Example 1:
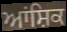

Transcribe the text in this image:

ਆਂਸ਼ਿਕ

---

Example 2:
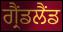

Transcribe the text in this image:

ਗ੍ਰੈਂਡਲੈਂਡ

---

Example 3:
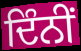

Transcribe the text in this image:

ਦਿੰਨੀਂ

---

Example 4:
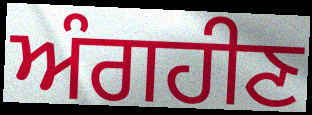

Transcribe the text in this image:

ਅੰਗਹੀਣ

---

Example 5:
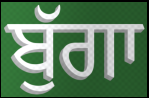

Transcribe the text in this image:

ਬੁੱਗਾ